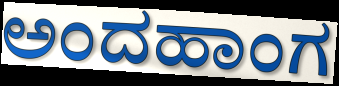
ಅಂದಹಾಂಗ